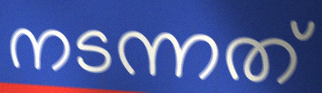
നടന്നത്